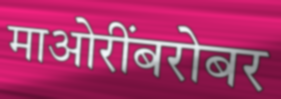
माओरींबरोबर